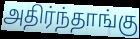
அதிர்ந்தாங்கு